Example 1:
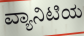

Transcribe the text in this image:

ವ್ಯಾನಿಟಿಯ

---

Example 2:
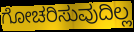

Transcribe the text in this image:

ಗೋಚರಿಸುವುದಿಲ್ಲ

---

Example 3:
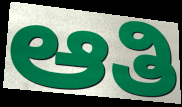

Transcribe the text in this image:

ಆತಿ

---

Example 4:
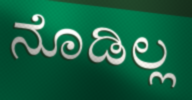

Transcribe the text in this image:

ನೊಡಿಲ್ಲ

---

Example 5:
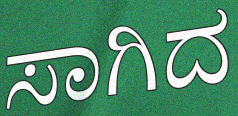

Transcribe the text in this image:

ಸಾಗಿದ